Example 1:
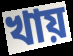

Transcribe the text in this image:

খায়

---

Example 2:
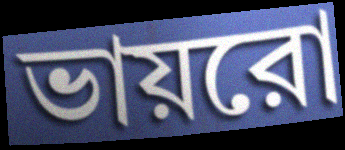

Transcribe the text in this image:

ভায়রো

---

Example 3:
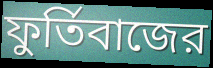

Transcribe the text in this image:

ফুর্তিবাজের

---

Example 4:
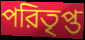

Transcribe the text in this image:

পরিতৃপ্ত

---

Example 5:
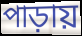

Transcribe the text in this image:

পাড়ায়